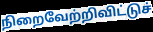
நிறைவேற்றிவிட்டுச்